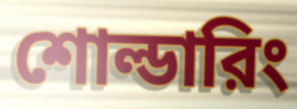
শোল্ডারিং